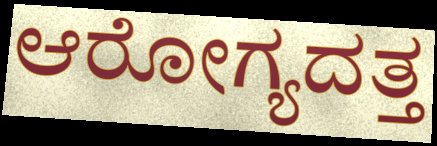
ಆರೋಗ್ಯದತ್ತ